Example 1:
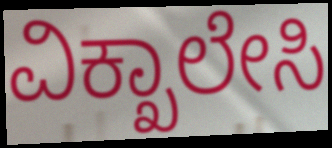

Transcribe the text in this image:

ವಿಕ್ಖಾಲೇಸಿ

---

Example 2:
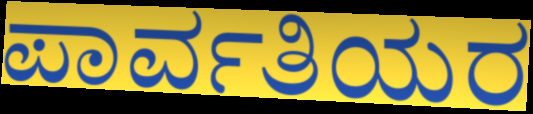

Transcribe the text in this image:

ಪಾರ್ವತಿಯರ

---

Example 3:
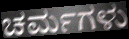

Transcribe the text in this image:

ಚರ್ಮಗಳು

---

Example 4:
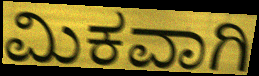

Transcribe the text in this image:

ಮಿಕವಾಗಿ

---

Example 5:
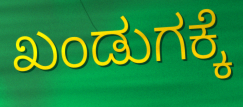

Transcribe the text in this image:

ಖಂಡುಗಕ್ಕೆ